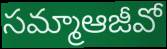
సమ్మాఆజీవో